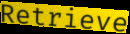
Retrieve